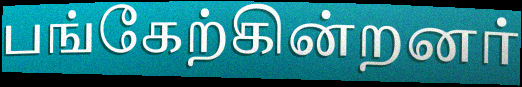
பங்கேற்கின்றனர்